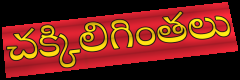
చక్కిలిగింతలు